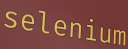
selenium